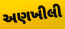
અણખીલી